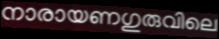
നാരായണഗുരുവിലെ